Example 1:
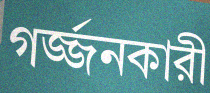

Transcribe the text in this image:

গর্জ্জনকারী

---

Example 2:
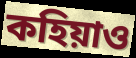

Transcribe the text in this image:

কহিয়াও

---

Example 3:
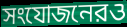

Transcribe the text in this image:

সংযোজনেরও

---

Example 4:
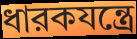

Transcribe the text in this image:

ধারকযন্ত্রে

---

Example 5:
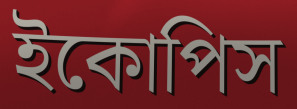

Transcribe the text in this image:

ইকোপিস